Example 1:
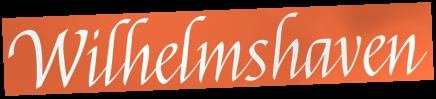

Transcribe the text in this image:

Wilhelmshaven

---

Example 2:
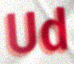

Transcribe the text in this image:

Ud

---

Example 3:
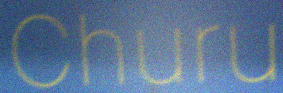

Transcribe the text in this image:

Churu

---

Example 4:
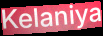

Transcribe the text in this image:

Kelaniya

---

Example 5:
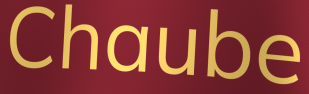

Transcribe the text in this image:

Chaube